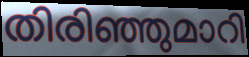
തിരിഞ്ഞുമാറി